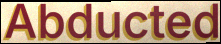
Abducted